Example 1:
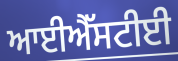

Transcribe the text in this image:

ਆਈਐੱਸਟੀਈ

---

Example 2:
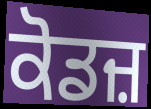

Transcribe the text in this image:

ਕੋਡਜ਼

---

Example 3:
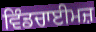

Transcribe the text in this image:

ਵਿੰਡਚਾਈਮਜ਼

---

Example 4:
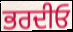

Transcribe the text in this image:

ਭਰਦੀਓ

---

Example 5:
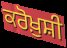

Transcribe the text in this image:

ਕਰੋਖ਼ੁਸ਼ੀ